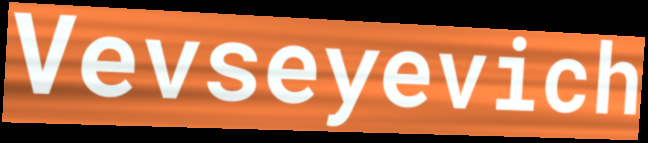
Vevseyevich